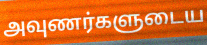
அவுணர்களுடைய